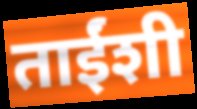
ताईंशी